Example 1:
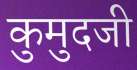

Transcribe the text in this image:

कुमुदजी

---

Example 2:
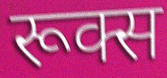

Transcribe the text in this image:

रूक्स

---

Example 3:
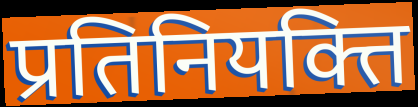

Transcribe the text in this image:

प्रतिनियक्ति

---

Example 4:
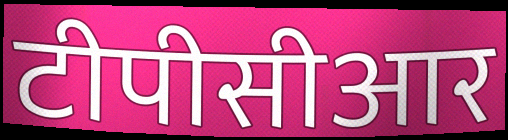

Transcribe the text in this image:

टीपीसीआर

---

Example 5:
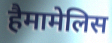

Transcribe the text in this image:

हैमामेलिस